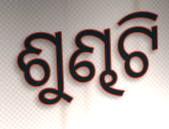
ଶୁଣ୍ଢଟି